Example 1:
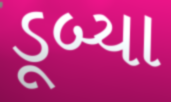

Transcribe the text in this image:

ડૂબ્યા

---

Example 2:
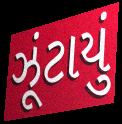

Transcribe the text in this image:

ઝૂંટાયું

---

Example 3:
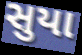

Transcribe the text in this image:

સુયા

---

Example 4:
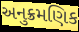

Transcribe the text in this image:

અનુક્રમણિક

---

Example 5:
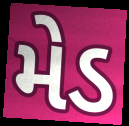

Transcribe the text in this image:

મેડ